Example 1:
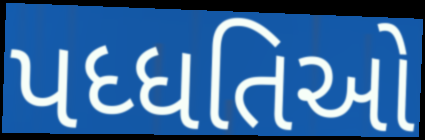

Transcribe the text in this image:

પધ્ધતિઓ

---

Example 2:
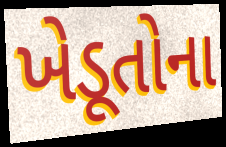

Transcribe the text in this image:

ખેડૂતોના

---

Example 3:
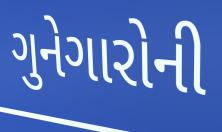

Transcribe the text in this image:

ગુનેગારોની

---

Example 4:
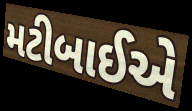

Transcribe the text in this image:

મટીબાઈએ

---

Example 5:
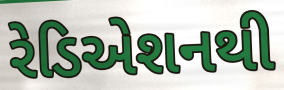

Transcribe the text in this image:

રેડિએશનથી